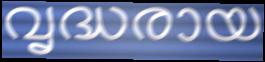
വൃദ്ധരായ